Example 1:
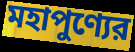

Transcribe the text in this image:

মহাপুণ্যের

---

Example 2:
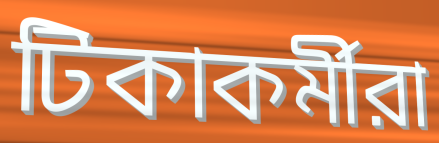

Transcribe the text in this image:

টিকাকর্মীরা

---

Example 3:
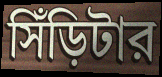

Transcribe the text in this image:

সিঁড়িটার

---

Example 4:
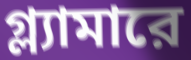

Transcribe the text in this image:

গ্ল্যামারে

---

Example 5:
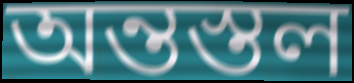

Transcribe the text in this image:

অন্তস্তল